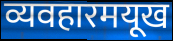
व्यवहारमयूख